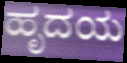
ಹೃದಯ